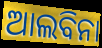
ଆଲବିନା